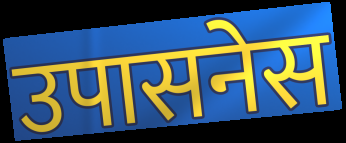
उपासनेस